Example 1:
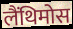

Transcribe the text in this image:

लैंथिमोस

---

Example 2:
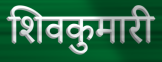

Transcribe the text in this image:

शिवकुमारी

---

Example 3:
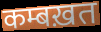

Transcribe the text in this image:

कम्बख़त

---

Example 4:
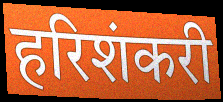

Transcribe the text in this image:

हरिशंकरी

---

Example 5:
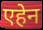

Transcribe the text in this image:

एहेन